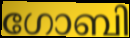
ഗോബി